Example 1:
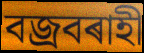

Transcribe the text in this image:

বজ্ৰবৰাহী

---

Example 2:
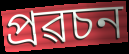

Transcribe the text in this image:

প্ৰৱচন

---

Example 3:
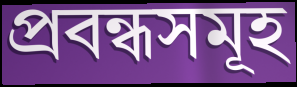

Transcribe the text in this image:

প্ৰবন্ধসমূহ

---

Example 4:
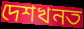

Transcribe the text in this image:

দেশখনত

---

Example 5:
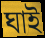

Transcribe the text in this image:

ঘাই